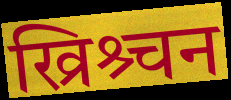
ख्रिश्र्चन